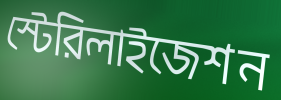
স্টেরিলাইজেশন